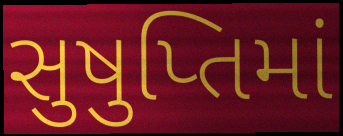
સુષુપ્તિમાં